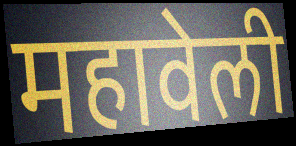
महावेली